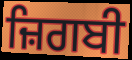
ਜ਼ਿਗਬੀ